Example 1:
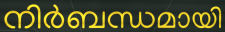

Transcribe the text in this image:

നിർബന്ധമായി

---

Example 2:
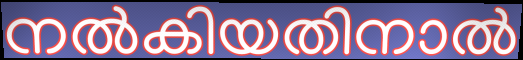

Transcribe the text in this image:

നൽകിയതിനാൽ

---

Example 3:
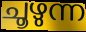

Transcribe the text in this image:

ചൂഴുന്ന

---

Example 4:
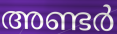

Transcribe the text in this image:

അണ്ടർ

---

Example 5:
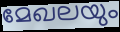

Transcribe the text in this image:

മേഖലയും